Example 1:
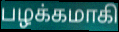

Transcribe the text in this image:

பழக்கமாகி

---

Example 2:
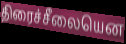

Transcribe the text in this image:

திரைச்சீலையென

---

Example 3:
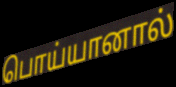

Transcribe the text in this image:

பொய்யானால்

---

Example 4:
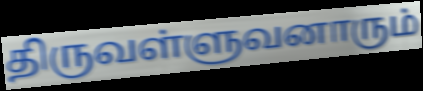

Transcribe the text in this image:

திருவள்ளுவனாரும்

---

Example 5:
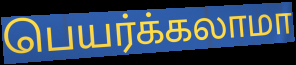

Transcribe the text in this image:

பெயர்க்கலாமா